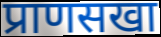
प्राणसखा